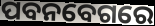
ପବନବେଗରେ